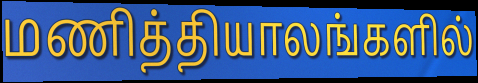
மணித்தியாலங்களில்